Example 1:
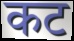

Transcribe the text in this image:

कट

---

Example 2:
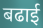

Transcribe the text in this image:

बढाई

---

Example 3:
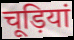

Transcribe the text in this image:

चूड़ियां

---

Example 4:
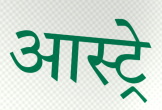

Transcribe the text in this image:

आस्ट्रे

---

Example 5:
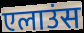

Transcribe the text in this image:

एलाउंस